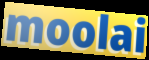
moolai